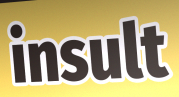
insult